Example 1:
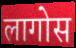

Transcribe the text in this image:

लागोस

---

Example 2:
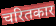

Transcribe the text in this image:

चरितकार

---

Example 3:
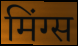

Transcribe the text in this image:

मिंग्स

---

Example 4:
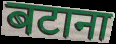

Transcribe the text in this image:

बटाना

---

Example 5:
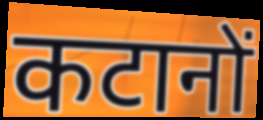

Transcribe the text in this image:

कटानों